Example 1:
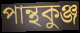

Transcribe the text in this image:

পান্থকুঞ্জ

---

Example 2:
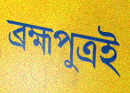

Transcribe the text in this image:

ব্রহ্মপুত্রই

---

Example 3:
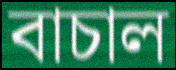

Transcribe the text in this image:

বাচাল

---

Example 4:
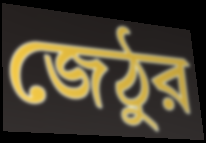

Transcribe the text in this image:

জেঠুর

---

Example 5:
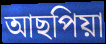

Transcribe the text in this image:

আছপিয়া